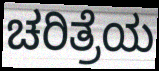
ಚರಿತ್ರೆಯ